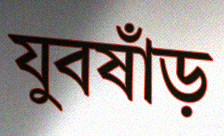
যুবষাঁড়